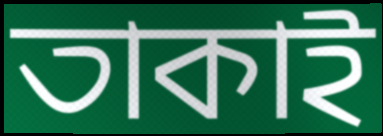
তাকাই